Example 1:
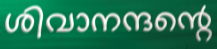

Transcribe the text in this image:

ശിവാനന്ദന്റെ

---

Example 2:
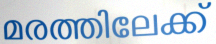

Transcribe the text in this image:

മരത്തിലേക്ക്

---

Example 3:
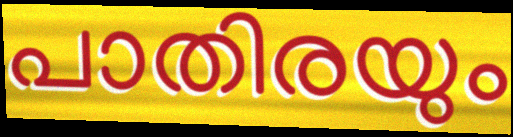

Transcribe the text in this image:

പാതിരയും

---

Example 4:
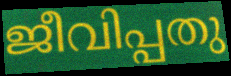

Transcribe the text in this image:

ജീവിപ്പതു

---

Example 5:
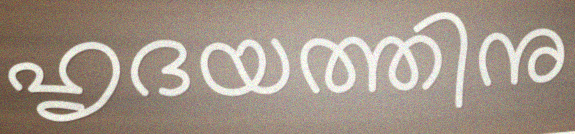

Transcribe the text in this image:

ഹൃദയത്തിനു